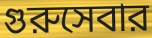
গুরুসেবার